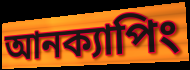
আনক্যাপিং